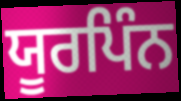
ਯੂਰਪਿੰਨ